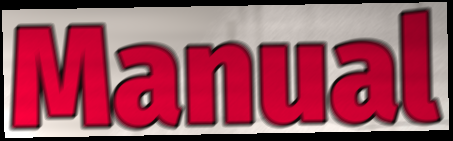
Manual